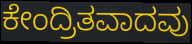
ಕೇಂದ್ರಿತವಾದವು